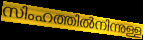
സിംഹത്തിൽനിന്നുള്ള